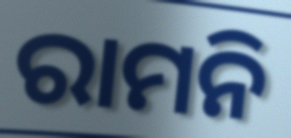
ରାମନି